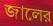
জালের